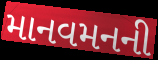
માનવમનની